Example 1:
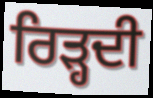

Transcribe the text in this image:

ਰਿੜ੍ਹਦੀ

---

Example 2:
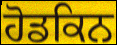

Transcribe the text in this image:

ਹੋਡਕਿਨ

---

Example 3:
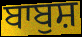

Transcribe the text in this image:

ਬਾਬੁਸ਼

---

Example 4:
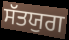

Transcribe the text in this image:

ਸੱਤਯੁਗ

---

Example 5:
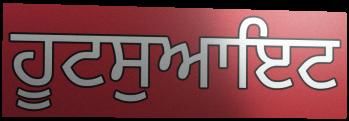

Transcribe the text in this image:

ਹੂਟਸੁਆਇਟ